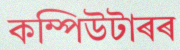
কম্পিউটাৰৰ